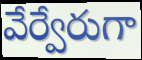
వేర్వేరుగా